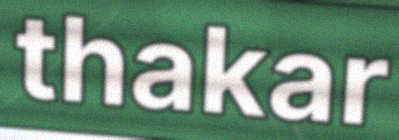
thakar